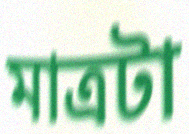
মাত্রটা